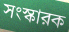
সংস্কারক